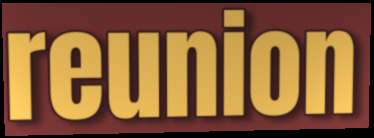
reunion